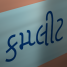
કમ્પ્લીટ